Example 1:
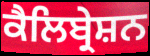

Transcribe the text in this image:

ਕੈਲਿਬ੍ਰੇਸ਼ਨ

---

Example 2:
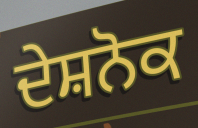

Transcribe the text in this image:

ਦੇਸ਼ਨੋਕ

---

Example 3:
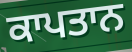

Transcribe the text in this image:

ਕਾਪਤਾਨ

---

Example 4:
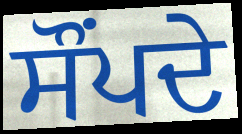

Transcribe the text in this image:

ਸੌਂਪਦੇ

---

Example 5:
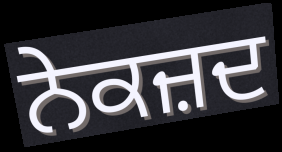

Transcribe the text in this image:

ਨੇਕਜ਼ਦ